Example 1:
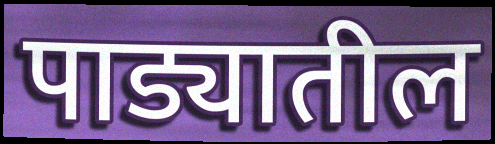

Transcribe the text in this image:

पाड्यातील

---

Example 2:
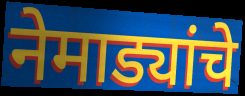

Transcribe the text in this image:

नेमाड्यांचे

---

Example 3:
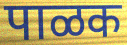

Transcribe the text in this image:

पाळक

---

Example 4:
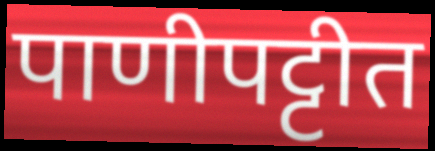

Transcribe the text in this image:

पाणीपट्टीत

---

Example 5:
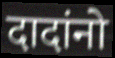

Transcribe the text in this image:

दादांनो